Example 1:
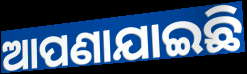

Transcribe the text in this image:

ଆପଣାଯାଇଛି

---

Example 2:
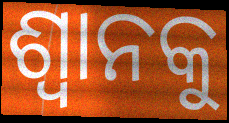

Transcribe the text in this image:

ଶ୍ଵାନକୁ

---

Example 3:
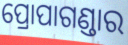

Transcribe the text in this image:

ପ୍ରୋପାଗଣ୍ଡାର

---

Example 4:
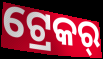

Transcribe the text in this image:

ଟ୍ରେକର୍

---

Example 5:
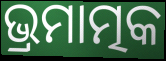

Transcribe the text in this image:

ଭ୍ରମାତ୍ମକ